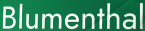
Blumenthal